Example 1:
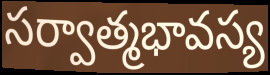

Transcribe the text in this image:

సర్వాత్మభావస్య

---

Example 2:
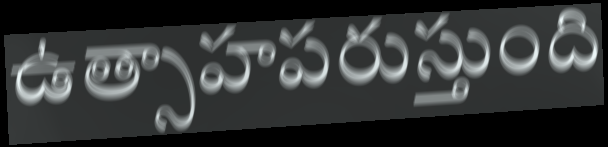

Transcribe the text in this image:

ఉత్సాహపరుస్తుంది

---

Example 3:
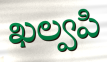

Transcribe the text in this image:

ఖల్వపి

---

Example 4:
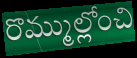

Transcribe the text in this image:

రొమ్ముల్లోంచి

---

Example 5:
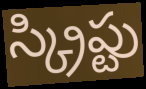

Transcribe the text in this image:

స్క్రిప్టు